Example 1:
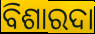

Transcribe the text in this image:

ବିଶାରଦା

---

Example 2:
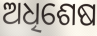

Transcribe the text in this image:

ଅଧିଶେଷ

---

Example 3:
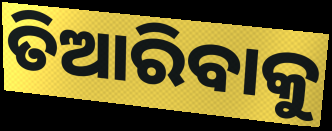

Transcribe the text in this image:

ତିଆରିବାକୁ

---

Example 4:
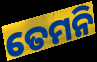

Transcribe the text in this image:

ତେମନି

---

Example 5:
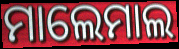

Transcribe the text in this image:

ମାଲେମାଲ